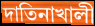
দাতিনাখালী